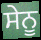
ਸੇਨੂ